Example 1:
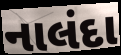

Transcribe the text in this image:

નાલંદા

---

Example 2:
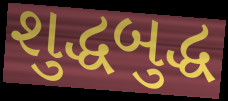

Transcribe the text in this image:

શુદ્ધબુદ્ધ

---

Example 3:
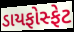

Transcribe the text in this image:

ડાયફોસ્ફેટ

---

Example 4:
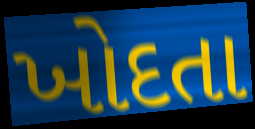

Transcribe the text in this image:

ખોદતા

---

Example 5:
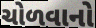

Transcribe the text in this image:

ચોળવાનો